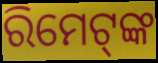
ରିମେଟ୍‍ଙ୍କ